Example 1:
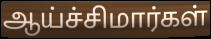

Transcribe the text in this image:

ஆய்ச்சிமார்கள்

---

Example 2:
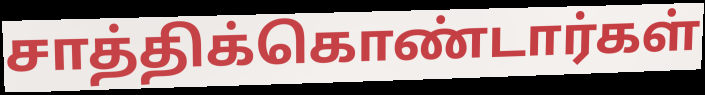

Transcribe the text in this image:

சாத்திக்கொண்டார்கள்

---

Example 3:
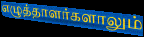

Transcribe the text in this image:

எழுத்தாளர்களாலும்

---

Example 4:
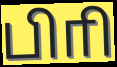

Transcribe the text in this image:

பிரி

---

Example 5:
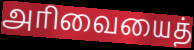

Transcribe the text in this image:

அரிவையைத்